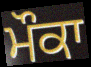
ਮੌਕਾ